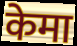
केमा